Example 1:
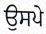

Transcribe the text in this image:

ਉਸਪੇ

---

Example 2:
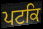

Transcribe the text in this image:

ਪਟਕਿ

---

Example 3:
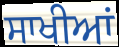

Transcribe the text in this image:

ਸਾਖੀਆਂ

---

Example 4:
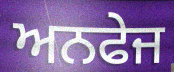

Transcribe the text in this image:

ਅਨਫੇਜ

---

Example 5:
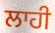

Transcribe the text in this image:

ਲਾਹੀ